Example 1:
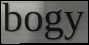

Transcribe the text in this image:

bogy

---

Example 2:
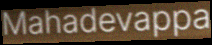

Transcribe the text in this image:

Mahadevappa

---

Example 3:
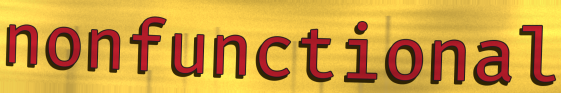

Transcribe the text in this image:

nonfunctional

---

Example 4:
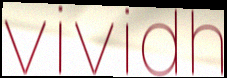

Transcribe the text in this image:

vividh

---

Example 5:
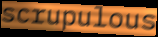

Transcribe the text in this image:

scrupulous